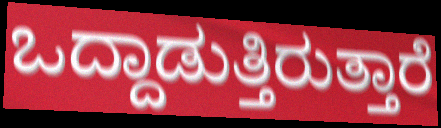
ಒದ್ದಾಡುತ್ತಿರುತ್ತಾರೆ